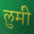
लुमी